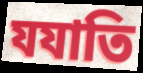
যযাতি